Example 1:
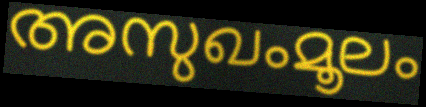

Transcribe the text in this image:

അസുഖംമൂലം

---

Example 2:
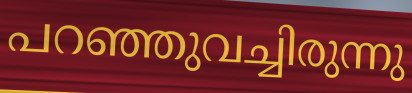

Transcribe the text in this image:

പറഞ്ഞുവച്ചിരുന്നു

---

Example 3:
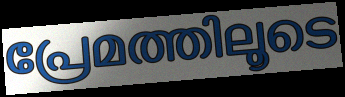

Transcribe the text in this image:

പ്രേമത്തിലൂടെ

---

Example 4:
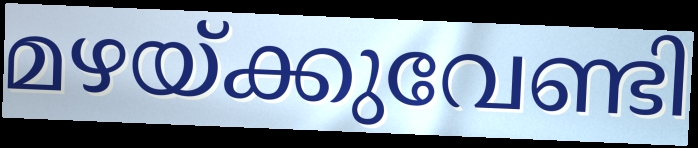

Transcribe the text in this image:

മഴയ്ക്കുവേണ്ടി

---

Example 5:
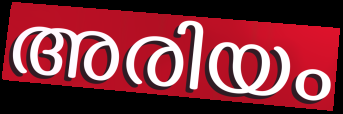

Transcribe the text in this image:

അരിയം